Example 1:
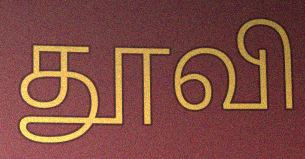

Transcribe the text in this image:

தூவி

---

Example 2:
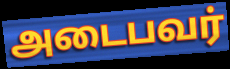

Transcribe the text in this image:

அடைபவர்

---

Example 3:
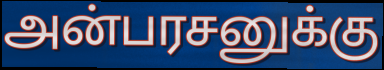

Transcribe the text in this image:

அன்பரசனுக்கு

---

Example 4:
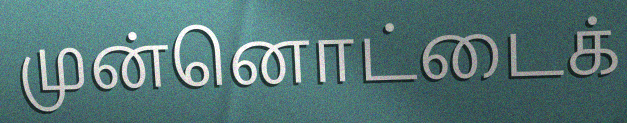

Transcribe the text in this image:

முன்னொட்டைக்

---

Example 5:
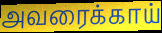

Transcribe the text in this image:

அவரைக்காய்